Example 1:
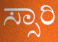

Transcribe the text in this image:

ಸ್ಸಾರಿ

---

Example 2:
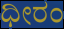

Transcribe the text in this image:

ಧೀರಂ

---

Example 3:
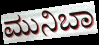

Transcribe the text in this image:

ಮುನಿಬಾ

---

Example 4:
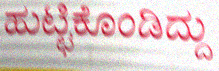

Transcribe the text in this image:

ಹುಟ್ಟಿಕೊಂಡಿದ್ದು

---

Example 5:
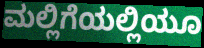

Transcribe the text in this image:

ಮಲ್ಲಿಗೆಯಲ್ಲಿಯೂ